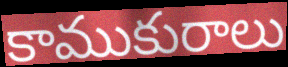
కాముకురాలు